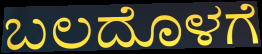
ಬಲದೊಳಗೆ